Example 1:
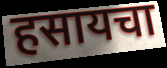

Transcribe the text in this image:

हसायचा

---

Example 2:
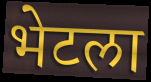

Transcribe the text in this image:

भेटला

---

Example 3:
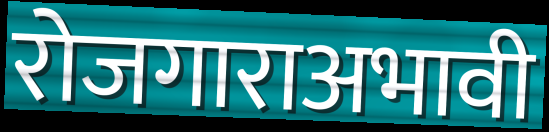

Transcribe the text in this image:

रोजगाराअभावी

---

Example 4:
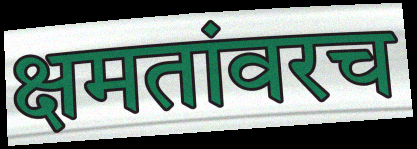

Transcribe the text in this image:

क्षमतांवरच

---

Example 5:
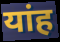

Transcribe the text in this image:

यांह